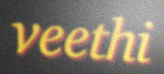
veethi